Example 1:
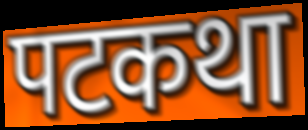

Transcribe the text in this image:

पटकथा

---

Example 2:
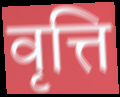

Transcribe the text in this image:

वृत्ति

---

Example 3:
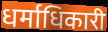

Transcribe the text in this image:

धर्माधिकारी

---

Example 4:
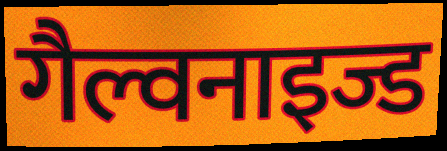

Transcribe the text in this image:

गैल्वनाइज्ड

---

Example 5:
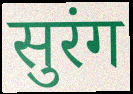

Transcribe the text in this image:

सुरंग